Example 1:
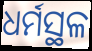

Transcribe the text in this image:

ଧର୍ମସ୍ଥଳ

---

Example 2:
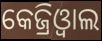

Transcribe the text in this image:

କେଜ୍ରିଓ୍ଵାଲ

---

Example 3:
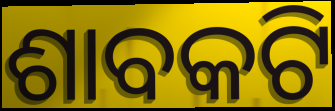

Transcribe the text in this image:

ଶାବକଟି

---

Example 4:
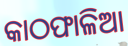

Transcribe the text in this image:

କାଠଫାଳିଆ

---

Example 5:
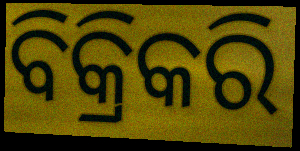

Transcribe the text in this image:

ବିକ୍ରିକରି